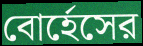
বোর্হেসের